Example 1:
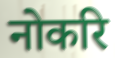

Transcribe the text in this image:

नोकरि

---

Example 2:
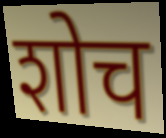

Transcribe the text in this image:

शोच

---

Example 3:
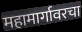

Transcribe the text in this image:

महामार्गावरचा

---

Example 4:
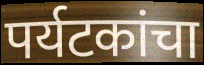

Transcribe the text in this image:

पर्यटकांचा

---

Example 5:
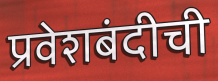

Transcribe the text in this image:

प्रवेशबंदीची